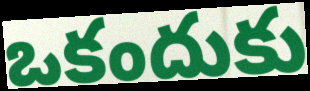
ఒకందుకు